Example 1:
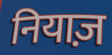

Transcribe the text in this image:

नियाज़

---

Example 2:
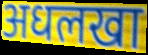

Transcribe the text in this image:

अधलखा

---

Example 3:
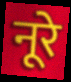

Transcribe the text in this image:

नूरे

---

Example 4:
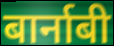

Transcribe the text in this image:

बार्नाबी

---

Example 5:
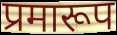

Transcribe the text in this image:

प्रमारूप